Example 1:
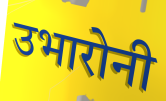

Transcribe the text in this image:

उभारोनी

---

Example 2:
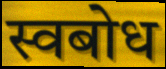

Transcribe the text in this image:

स्वबोध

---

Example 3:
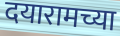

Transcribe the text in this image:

दयारामच्या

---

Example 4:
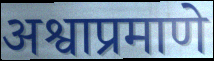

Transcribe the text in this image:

अश्वाप्रमाणे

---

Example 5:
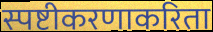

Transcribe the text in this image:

स्पष्टीकरणाकरिता